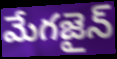
మేగజైన్